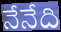
నేనేది